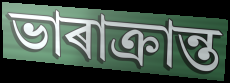
ভাৰাক্ৰান্ত